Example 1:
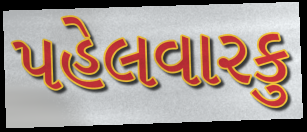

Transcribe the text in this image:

પહેલવારકુ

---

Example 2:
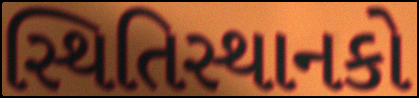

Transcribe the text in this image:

સ્થિતિસ્થાનકો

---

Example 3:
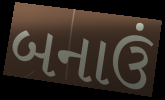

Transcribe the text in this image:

બનાઉં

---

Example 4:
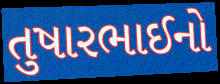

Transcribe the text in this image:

તુષારભાઈનો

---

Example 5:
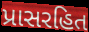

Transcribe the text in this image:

પ્રાસરહિત